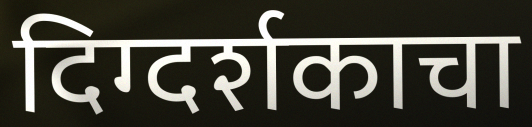
दिग्दर्शकाचा